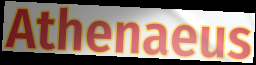
Athenaeus